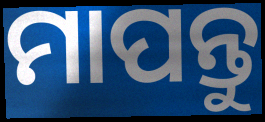
ମାପନ୍ତୁ